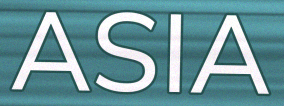
ASIA